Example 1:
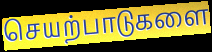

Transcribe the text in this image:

செயற்பாடுகளை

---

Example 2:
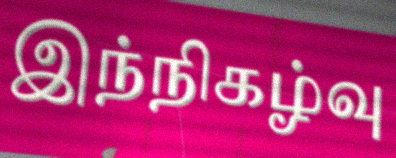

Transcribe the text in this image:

இந்நிகழ்வு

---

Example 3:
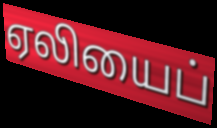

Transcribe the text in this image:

ஏலியைப்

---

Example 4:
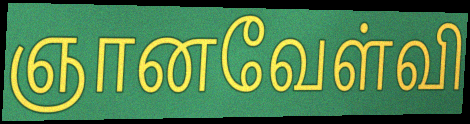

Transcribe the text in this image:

ஞானவேள்வி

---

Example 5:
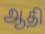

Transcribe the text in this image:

ஆதி